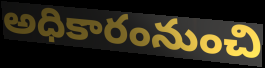
అధికారంనుంచి